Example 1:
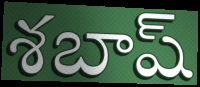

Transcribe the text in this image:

శబాష్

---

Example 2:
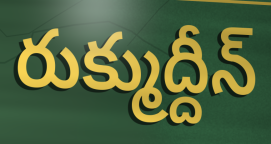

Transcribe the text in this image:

రుక్ముద్దీన్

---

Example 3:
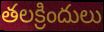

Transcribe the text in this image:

తలక్రిందులు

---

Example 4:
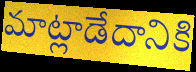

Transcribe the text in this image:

మాట్లాడేదానికి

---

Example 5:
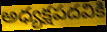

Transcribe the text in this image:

అధ్యక్షపదవికి